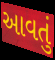
આવતું